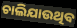
ଚାଲିଯାଉଥିବ